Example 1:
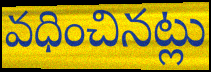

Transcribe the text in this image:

వధించినట్లు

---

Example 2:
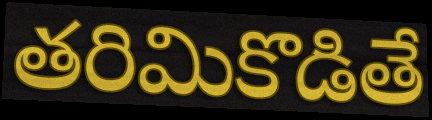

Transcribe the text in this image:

తరిమికొడితే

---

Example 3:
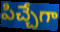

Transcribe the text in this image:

పిచ్చేగా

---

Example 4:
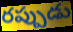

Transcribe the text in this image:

రప్పుడు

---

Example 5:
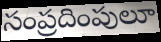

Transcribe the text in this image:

సంప్రదింపులూ